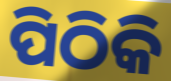
ପିଠିକି